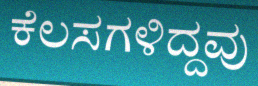
ಕೆಲಸಗಳಿದ್ದವು